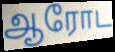
ஆரோட